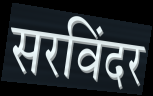
सरविंदर